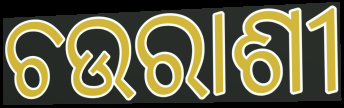
ଚଉରାଶୀ